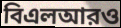
বিএলআরও